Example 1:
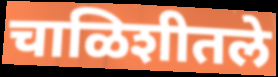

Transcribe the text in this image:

चाळिशीतले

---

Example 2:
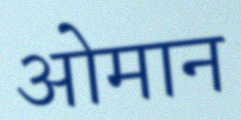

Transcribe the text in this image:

ओमान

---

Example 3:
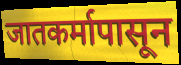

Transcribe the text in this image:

जातकर्मापासून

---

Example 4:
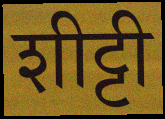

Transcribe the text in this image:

शीट्टी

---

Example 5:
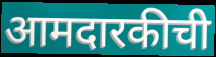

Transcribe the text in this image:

आमदारकीची